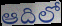
ఆదిలో